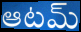
ఆటమ్